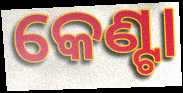
କେଣ୍ଟା